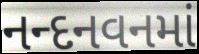
નન્દનવનમાં